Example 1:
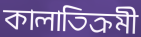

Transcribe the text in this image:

কালাতিক্রমী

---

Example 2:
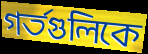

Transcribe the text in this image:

গর্তগুলিকে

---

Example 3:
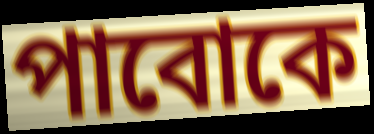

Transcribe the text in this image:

পাবোকে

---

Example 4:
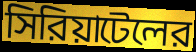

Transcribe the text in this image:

সিরিয়াটেলের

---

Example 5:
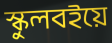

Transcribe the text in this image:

স্কুলবইয়ে